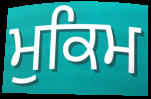
ਮੁਕਿਮ